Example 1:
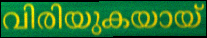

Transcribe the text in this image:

വിരിയുകയായ്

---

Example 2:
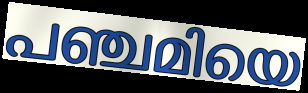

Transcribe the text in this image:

പഞ്ചമിയെ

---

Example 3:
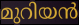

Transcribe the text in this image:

മുറിയൻ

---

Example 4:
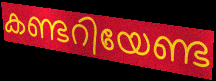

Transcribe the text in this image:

കണ്ടറിയേണ്ട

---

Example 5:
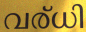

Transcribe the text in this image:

വര്ധി